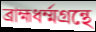
ব্রাহ্মধর্ম্মগ্রন্থে